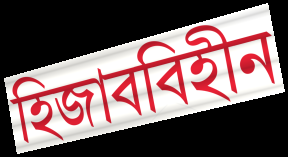
হিজাববিহীন